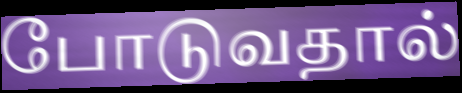
போடுவதால்